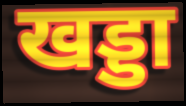
खड्डा